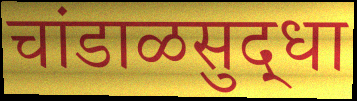
चांडाळसुद्धा